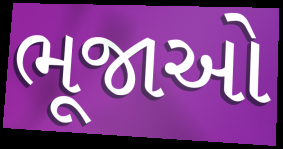
ભૂજાઓ